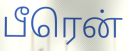
பீரென்